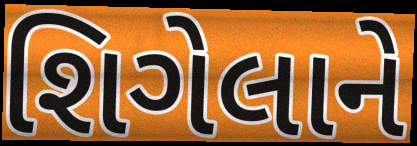
શિગેલાને